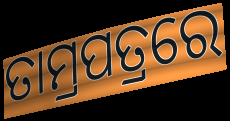
ତାମ୍ରପତ୍ରରେ